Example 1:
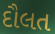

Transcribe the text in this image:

દૌલત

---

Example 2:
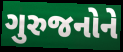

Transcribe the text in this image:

ગુરુજનોને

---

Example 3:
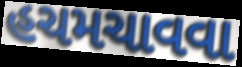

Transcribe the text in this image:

હચમચાવવા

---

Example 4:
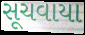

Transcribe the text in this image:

સૂચવાયા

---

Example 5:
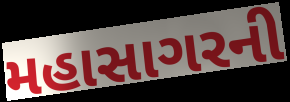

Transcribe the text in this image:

મહાસાગરની